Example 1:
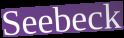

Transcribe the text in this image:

Seebeck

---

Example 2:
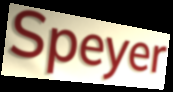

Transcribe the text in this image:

Speyer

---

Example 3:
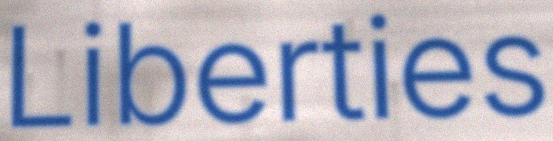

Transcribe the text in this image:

Liberties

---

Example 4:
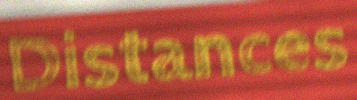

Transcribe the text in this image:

Distances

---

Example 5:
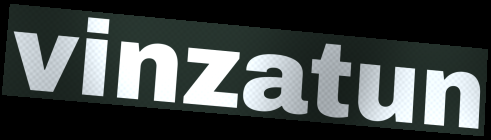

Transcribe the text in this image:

vinzatun